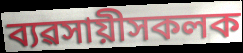
ব্যৱসায়ীসকলক